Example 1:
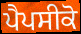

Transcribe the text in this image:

ਪੈਪਸੀਕੋ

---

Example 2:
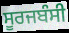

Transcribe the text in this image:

ਸੂਰਜਬੰਸੀ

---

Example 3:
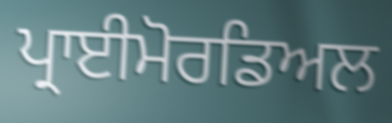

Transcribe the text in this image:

ਪ੍ਰਾਈਮੋਰਡਿਅਲ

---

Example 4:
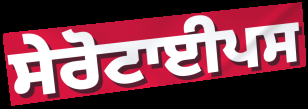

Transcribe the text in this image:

ਸੇਰੋਟਾਈਪਸ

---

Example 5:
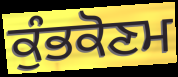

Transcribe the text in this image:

ਕੁੰਭਕੋਣਮ